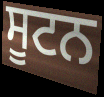
ਸੂਟਨ